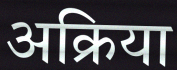
अक्रिया